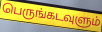
பெருங்கடவுளும்